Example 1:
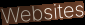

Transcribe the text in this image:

Websites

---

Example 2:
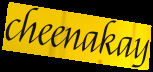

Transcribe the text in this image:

cheenakay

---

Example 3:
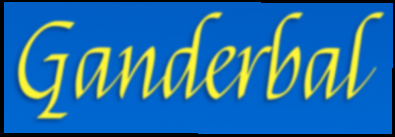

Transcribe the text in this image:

Ganderbal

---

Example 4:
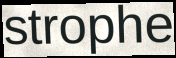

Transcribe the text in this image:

strophe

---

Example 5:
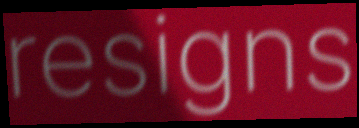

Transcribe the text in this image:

resigns